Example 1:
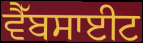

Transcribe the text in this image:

ਵੈੱਬਸਾਈਟ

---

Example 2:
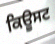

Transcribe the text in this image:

ਕਿਊਸਟ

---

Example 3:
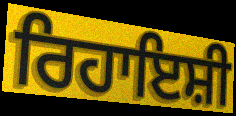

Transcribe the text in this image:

ਰਿਹਾਇਸ਼ੀ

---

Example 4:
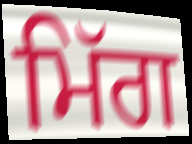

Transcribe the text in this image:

ਮਿੱਗ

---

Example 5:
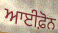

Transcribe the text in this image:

ਆਈਫ਼ੋਨ